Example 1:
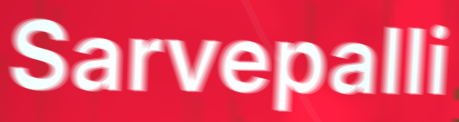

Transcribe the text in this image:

Sarvepalli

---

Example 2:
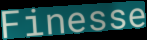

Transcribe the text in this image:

Finesse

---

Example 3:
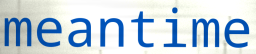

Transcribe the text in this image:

meantime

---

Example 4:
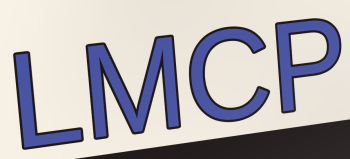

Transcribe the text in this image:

LMCP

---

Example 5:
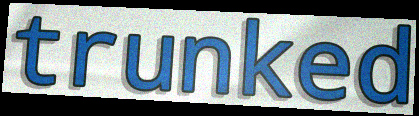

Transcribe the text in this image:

trunked